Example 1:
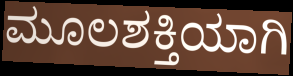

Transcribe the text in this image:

ಮೂಲಶಕ್ತಿಯಾಗಿ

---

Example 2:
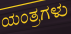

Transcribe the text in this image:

ಯಂತ್ರಗಳು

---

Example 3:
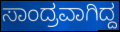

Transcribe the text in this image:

ಸಾಂದ್ರವಾಗಿದ್ದ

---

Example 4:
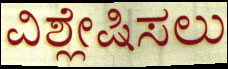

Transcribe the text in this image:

ವಿಶ್ಲೇಷಿಸಲು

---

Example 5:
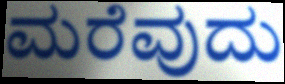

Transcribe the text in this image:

ಮರೆವುದು